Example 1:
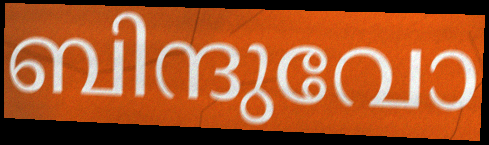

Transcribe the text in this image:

ബിന്ദുവോ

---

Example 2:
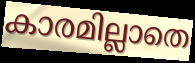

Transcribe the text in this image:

കാരമില്ലാതെ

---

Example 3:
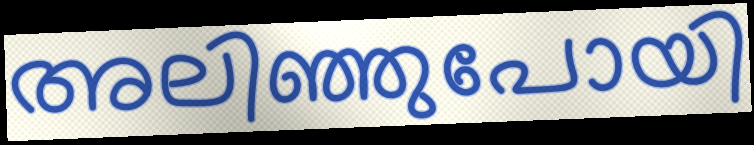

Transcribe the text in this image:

അലിഞ്ഞുപോയി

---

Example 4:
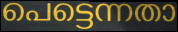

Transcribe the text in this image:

പെട്ടെന്നതാ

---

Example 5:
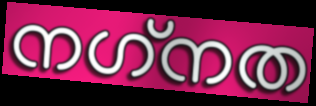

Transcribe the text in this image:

നഗ്‌നത